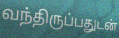
வந்திருப்பதுடன்